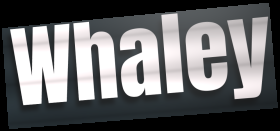
Whaley